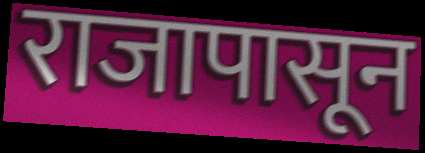
राजापासून